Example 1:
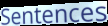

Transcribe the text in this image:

Sentences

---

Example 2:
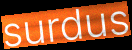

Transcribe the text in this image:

surdus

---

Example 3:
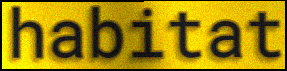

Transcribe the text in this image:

habitat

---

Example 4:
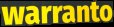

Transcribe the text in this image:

warranto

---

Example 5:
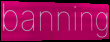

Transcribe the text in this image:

banning